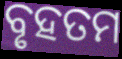
ବୃହତମ